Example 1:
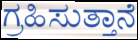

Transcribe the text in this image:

ಗ್ರಹಿಸುತ್ತಾನೆ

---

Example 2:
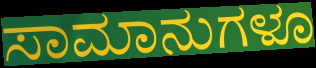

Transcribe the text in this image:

ಸಾಮಾನುಗಳೂ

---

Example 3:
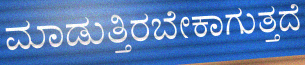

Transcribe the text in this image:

ಮಾಡುತ್ತಿರಬೇಕಾಗುತ್ತದೆ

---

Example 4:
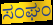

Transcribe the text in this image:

ಸಂಘಂ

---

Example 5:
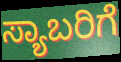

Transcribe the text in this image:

ಸ್ಯಾಬರಿಗೆ